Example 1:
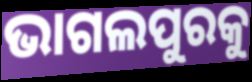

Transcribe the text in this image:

ଭାଗଲପୁରକୁ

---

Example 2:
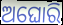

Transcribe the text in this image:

ଅଘୋରି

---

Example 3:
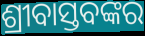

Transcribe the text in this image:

ଶ୍ରୀବାସ୍ତବଙ୍କର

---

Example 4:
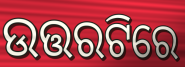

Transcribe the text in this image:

ଉତ୍ତରଟିରେ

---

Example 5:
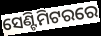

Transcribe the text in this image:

ସେଣ୍ଟିମିଟରରେ